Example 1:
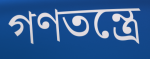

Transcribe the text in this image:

গণতন্ত্রে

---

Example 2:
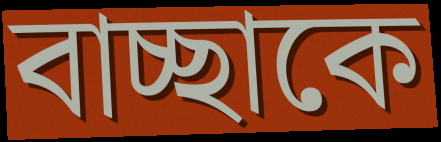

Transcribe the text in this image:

বাচ্ছাকে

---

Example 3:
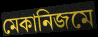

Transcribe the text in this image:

মেকানিজমে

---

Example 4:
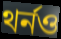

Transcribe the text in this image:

থর্নও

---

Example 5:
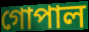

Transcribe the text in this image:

গোপাল